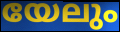
യേലും